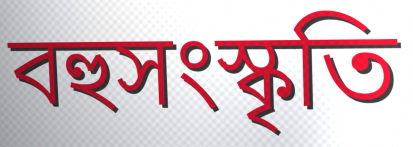
বহুসংস্কৃতি